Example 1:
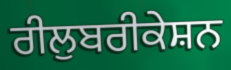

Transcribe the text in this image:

ਰੀਲੁਬਰੀਕੇਸ਼ਨ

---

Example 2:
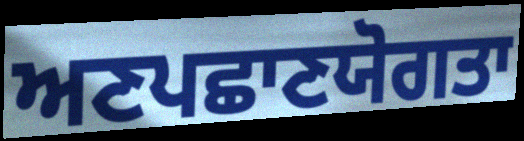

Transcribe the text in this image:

ਅਣਪਛਾਣਯੋਗਤਾ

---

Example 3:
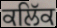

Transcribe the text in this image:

ਕਲਿੱਕ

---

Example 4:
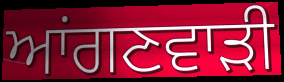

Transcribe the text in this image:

ਆਂਗਣਵਾੜੀ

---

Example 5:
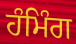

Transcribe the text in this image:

ਹੰਮਿੰਗ